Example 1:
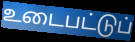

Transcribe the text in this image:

உடைபட்டுப்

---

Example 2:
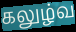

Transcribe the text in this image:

கலுழ்வ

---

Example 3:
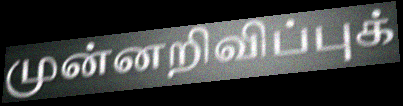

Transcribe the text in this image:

முன்னறிவிப்புக்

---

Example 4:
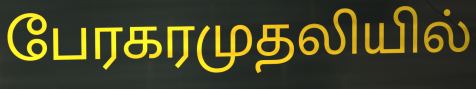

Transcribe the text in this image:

பேரகரமுதலியில்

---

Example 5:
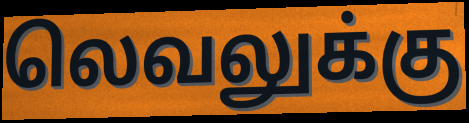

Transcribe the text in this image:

லெவலுக்கு